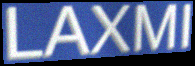
LAXMI